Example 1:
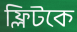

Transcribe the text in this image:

ফ্লিটকে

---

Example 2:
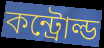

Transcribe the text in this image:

কন্ট্রোল্ড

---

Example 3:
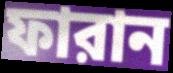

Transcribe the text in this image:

ফারান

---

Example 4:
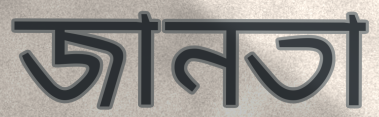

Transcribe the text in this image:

জানতা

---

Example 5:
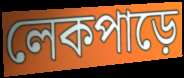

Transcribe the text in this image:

লেকপাড়ে